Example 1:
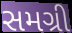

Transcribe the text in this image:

સમગ્રી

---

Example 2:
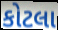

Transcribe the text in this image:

કોટલા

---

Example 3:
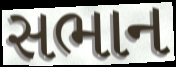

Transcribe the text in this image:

સભાન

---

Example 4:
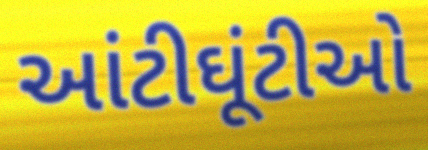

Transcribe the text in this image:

આંટીઘૂંટીઓ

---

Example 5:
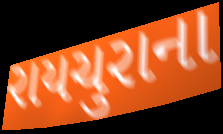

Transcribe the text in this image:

રાયચુરાના